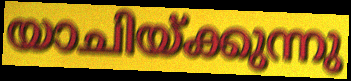
യാചിയ്ക്കുന്നു